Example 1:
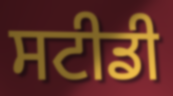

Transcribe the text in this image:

ਸਟੀਡੀ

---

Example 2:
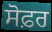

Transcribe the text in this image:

ਸੋਫ਼ਰ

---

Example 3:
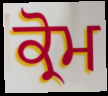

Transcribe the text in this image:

ਕ੍ਰੋਮ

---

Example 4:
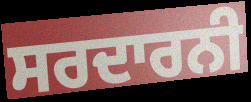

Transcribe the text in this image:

ਸਰਦਾਰਨੀ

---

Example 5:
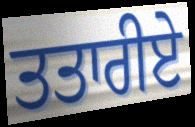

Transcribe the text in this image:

ਤਤਾਰੀਏ